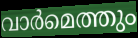
വാർമെത്തും